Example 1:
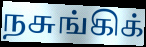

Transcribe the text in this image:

நசுங்கிக்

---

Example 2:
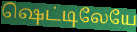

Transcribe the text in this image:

ஷெட்டிலேயே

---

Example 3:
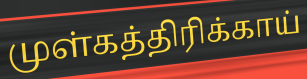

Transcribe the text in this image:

முள்கத்திரிக்காய்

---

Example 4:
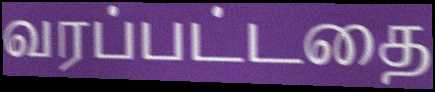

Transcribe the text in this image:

வரப்பட்டதை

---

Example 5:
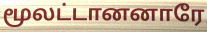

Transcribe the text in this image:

மூலட்டானனாரே